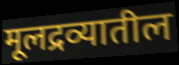
मूलद्रव्यातील